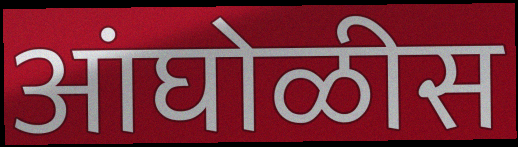
आंघोळीस